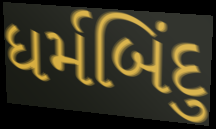
ધર્મબિંદુ